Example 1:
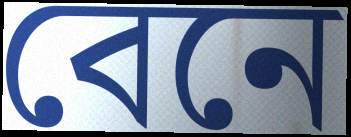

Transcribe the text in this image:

বেনে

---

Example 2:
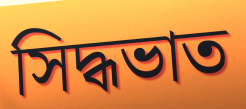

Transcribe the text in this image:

সিদ্ধভাত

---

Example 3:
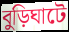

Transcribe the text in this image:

বুড়িঘাটে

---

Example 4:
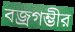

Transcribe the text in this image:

বজ্রগম্ভীর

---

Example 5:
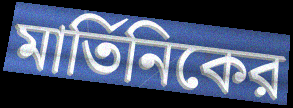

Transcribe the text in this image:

মার্তিনিকের